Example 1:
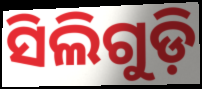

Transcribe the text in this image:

ସିଲିଗୁଡ଼ି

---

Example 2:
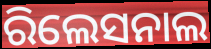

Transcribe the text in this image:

ରିଲେସନାଲ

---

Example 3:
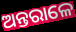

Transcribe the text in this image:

ଅନ୍ତରାଳେ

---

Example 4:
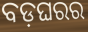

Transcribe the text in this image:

ବଡ଼ଘରର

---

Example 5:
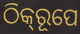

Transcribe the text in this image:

ଠିକ୍‍ରୂପେ